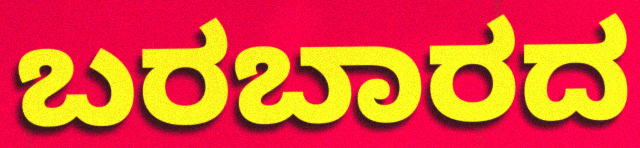
ಬರಬಾರದ